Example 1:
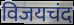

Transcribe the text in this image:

विजयचंद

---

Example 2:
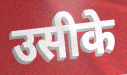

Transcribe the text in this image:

उसीके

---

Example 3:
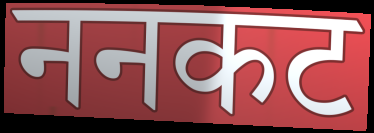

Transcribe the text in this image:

ननकट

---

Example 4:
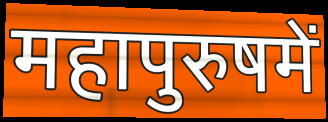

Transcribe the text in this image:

महापुरुषमें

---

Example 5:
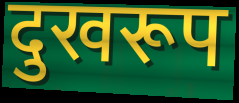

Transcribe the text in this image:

दुखरूप